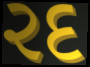
રદ